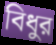
বিধুর